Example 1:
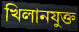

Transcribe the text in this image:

খিলানযুক্ত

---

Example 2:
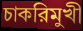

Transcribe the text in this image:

চাকরিমুখী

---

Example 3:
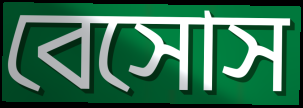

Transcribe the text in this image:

বেসোস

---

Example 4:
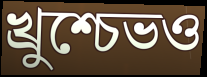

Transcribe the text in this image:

খ্রুশ্চেভও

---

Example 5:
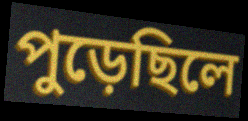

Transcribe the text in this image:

পুড়েছিলে